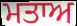
ਮਤਾਅ